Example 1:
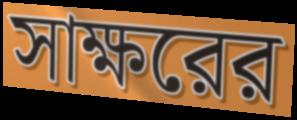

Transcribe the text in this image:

সাক্ষরের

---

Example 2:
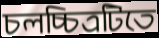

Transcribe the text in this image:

চলচ্চিত্রটিতে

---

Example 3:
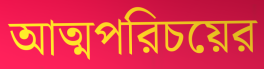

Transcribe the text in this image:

আত্মপরিচয়ের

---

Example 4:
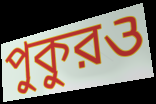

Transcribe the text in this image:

পুকুরও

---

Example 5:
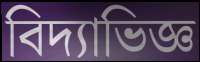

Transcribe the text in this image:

বিদ্যাভিজ্ঞ